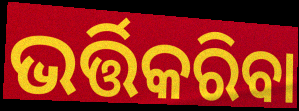
ଭର୍ତ୍ତିକରିବା